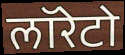
लॉरेटो